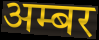
अम्‍बर